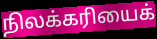
நிலக்கரியைக்